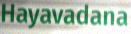
Hayavadana